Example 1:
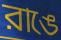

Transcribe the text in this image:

রাঙে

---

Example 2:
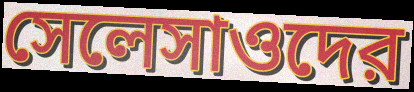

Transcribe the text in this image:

সেলেসাওদের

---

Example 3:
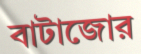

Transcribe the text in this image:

বাটাজোর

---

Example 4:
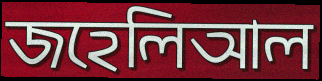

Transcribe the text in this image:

জহেলিআল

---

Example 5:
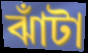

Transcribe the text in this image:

ঝাঁটা